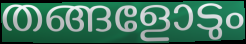
തങ്ങളോടും